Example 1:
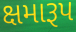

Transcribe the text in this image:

ક્ષમારૂપ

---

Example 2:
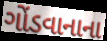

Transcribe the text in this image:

ગોંડવાનાના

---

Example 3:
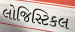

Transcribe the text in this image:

લોજિસ્ટિકલ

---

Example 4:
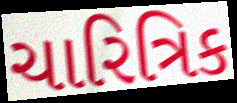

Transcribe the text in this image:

ચારિત્રિક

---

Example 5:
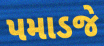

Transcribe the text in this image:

પમાડજે